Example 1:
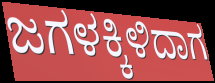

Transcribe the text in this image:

ಜಗಳಕ್ಕಿಳಿದಾಗ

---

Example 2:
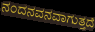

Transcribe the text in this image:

ನಂದನವನವಾಗುತ್ತದೆ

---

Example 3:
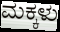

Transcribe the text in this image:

ಮಕ್ಕಳು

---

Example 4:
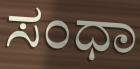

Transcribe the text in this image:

ಸಂಧಾ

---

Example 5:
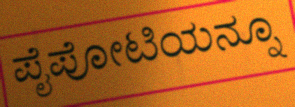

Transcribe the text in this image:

ಪೈಪೋಟಿಯನ್ನೂ